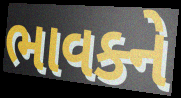
ભાવક્ને